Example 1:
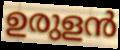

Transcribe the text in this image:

ഉരുളൻ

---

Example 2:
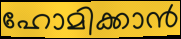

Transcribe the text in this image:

ഹോമിക്കാൻ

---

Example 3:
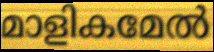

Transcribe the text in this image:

മാളികമേൽ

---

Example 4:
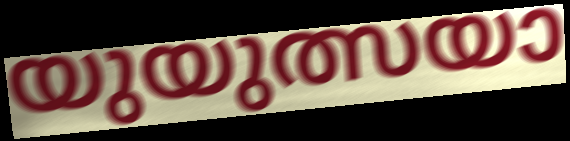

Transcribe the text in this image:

യുയുത്സയാ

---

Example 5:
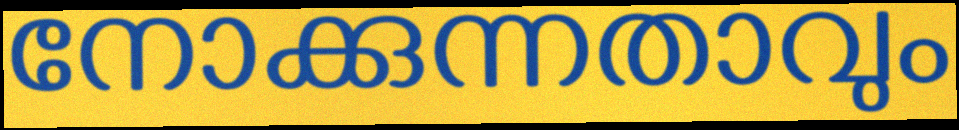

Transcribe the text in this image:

നോക്കുന്നതാവും